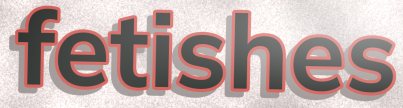
fetishes